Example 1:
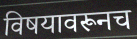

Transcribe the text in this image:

विषयावरूनच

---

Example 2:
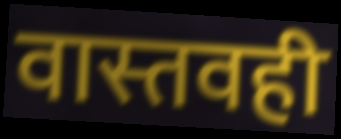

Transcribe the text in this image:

वास्तवही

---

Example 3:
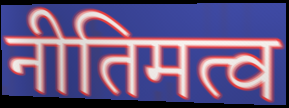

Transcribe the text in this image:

नीतिमत्व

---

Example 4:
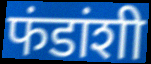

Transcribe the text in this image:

फंडांशी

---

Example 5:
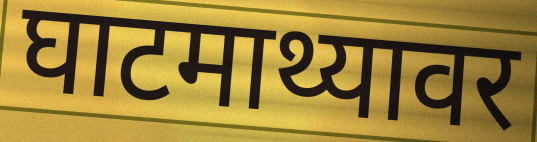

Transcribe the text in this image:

घाटमाथ्यावर